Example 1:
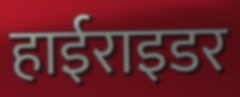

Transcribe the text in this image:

हाईराइडर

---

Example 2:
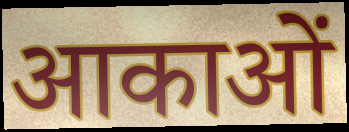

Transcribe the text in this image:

आकाओं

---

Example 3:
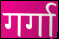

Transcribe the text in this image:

गर्गा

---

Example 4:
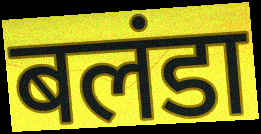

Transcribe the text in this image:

बलंडा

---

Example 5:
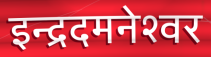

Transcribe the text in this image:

इन्द्रदमनेश्वर